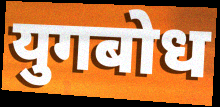
युगबोध